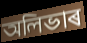
অলিভাৰ